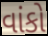
વાંકો